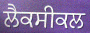
ਲੈਕਸੀਕਲ